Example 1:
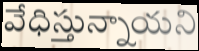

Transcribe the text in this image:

వేధిస్తున్నాయని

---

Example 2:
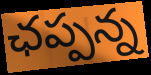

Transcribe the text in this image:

ఛప్పన్న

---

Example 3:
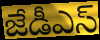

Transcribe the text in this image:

జేడీఎస్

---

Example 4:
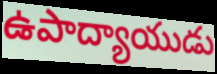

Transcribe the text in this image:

ఉపాద్యాయుడు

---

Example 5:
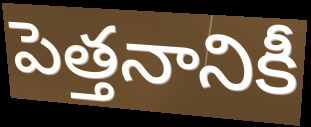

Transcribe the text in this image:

పెత్తనానికీ